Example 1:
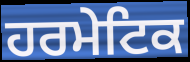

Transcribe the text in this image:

ਹਰਮੇਟਿਕ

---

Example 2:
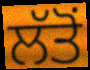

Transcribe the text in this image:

ਲੱਤੋਂ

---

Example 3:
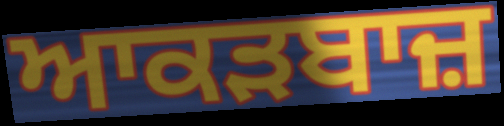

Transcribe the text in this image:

ਆਕੜਬਾਜ਼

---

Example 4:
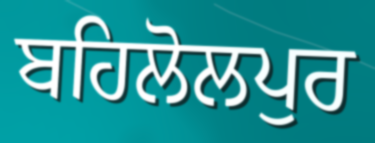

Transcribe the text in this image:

ਬਹਿਲੋਲਪੁਰ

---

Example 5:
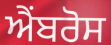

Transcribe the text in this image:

ਐਂਬਰੋਸ